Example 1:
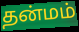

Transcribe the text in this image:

தன்மம்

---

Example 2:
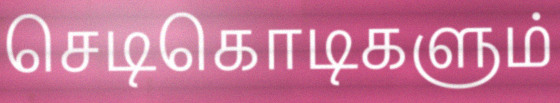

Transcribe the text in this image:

செடிகொடிகளும்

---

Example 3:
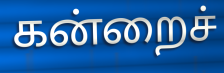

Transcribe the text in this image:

கன்றைச்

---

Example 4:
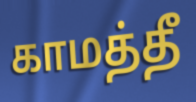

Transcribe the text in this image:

காமத்தீ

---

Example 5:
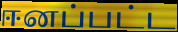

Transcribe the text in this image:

ஈனப்பட்ட